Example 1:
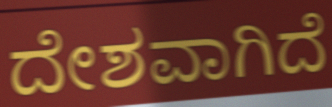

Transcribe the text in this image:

ದೇಶವಾಗಿದೆ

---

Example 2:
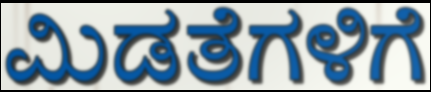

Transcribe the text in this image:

ಮಿಡತೆಗಳಿಗೆ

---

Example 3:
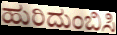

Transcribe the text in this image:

ಹುರಿದುಂಬಿಸಿ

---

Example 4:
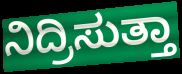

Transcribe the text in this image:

ನಿದ್ರಿಸುತ್ತಾ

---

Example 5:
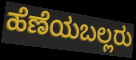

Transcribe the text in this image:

ಹೆಣೆಯಬಲ್ಲರು